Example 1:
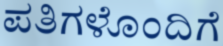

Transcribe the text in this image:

ಪತಿಗಳೊಂದಿಗೆ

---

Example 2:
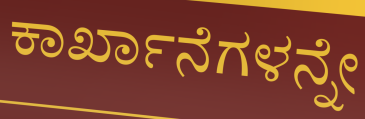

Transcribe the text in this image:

ಕಾರ್ಖಾನೆಗಳನ್ನೇ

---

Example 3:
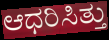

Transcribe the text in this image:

ಆಧರಿಸಿತ್ತು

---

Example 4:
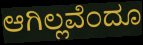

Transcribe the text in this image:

ಆಗಿಲ್ಲವೆಂದೂ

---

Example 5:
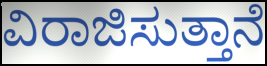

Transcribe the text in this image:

ವಿರಾಜಿಸುತ್ತಾನೆ